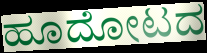
ಹೂದೋಟದ